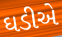
ઘડીએ